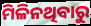
ମିଳିନଥିବାରୁ